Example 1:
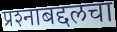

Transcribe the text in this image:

प्रश्नाबद्दलचा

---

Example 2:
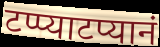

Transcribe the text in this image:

टप्प्याटप्यानं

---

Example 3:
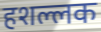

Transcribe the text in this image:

हशल्लक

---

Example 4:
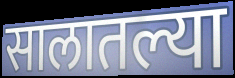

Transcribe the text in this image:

सालातल्या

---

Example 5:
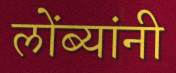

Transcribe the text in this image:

लोंब्यांनी